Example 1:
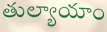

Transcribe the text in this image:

తుల్యాయాం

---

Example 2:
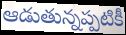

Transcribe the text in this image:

ఆడుతున్నప్పటికీ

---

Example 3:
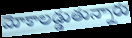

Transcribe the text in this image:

మోకాలడ్డుతున్నారు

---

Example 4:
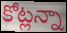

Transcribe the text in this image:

కోట్లన్నా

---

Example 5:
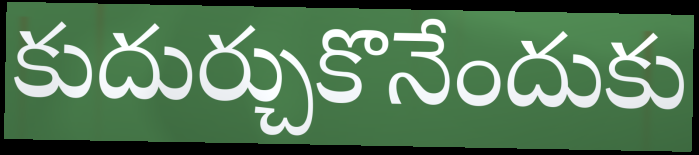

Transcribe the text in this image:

కుదుర్చుకొనేందుకు